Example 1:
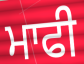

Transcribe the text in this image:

ਮਾਫੀ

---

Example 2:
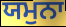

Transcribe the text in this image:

ਯਮੁਨਾ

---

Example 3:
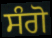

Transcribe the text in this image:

ਸੰਗੋ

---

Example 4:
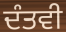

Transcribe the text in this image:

ਦੰਤਵੀ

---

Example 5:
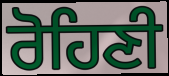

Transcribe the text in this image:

ਰੋਹਿਣੀ